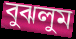
বুঝলুম